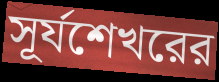
সূর্যশেখরের